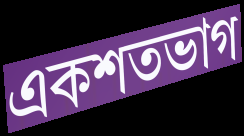
একশতভাগ